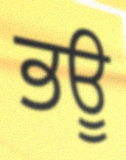
ਭਊ